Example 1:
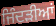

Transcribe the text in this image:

ਜਿੰਦੜੀਆਂ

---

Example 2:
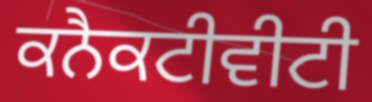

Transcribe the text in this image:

ਕਨੈਕਟੀਵੀਟੀ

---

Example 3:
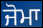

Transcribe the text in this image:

ਜੋਮਾ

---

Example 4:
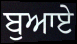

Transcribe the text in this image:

ਬੁਆਏ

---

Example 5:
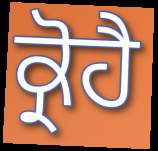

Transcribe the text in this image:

ਕ੍ਰੋਹੈ